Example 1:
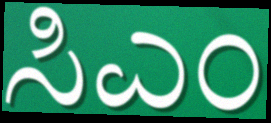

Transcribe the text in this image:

ಸಿಎಂ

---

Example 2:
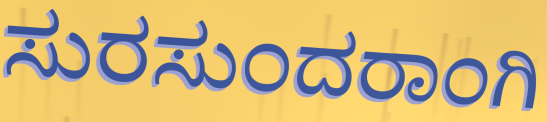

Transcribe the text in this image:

ಸುರಸುಂದರಾಂಗಿ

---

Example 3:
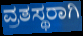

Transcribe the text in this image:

ವ್ರತಸ್ಥರಾಗಿ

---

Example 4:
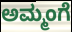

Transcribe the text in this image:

ಅಮ್ಮಂಗೆ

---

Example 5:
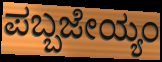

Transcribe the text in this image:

ಪಬ್ಬಜೇಯ್ಯಂ